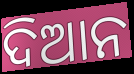
ଦିଆନ